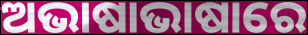
ଅଭାଷାଭାଷାରେ